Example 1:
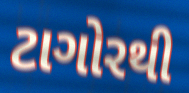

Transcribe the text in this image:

ટાગોરથી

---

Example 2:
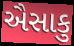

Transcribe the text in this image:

ઐસાકુ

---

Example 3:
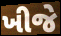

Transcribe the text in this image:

ખીજે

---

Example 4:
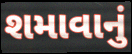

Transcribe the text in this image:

શમાવાનું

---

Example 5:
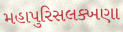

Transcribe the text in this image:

મહાપુરિસલક્ખણા